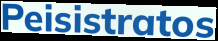
Peisistratos